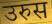
उरुस